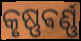
କୃଷ୍ଣଵର୍ଣ୍ଣ